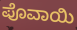
ಪೊವಾಯಿ